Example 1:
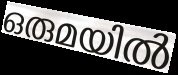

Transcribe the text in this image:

ഒരുമയിൽ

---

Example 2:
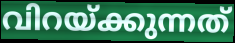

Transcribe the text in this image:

വിറയ്ക്കുന്നത്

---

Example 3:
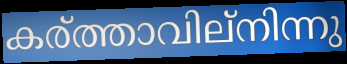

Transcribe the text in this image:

കര്ത്താവില്നിന്നു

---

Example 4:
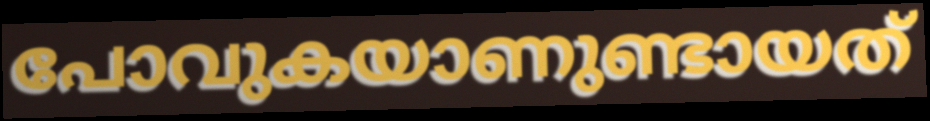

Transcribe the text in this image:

പോവുകയാണുണ്ടായത്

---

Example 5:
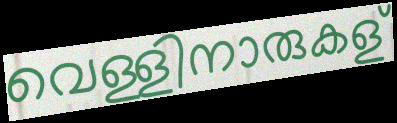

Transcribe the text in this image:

വെള്ളിനാരുകള്